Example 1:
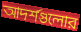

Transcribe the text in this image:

আদর্শগুলোর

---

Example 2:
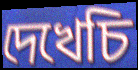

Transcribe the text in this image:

দেখেচি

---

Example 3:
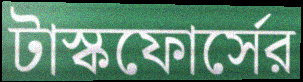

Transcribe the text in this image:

টাস্কফোর্সের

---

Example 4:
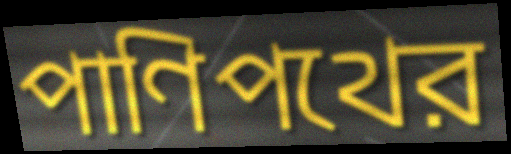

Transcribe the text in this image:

পাণিপথের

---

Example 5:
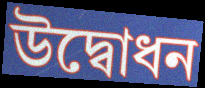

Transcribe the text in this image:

উদ্বোধন